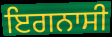
ਇਗਨਾਸੀ